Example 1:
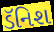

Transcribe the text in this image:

ડૅનિશ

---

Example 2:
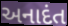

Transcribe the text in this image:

અનાદંત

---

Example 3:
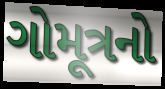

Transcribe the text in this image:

ગોમૂત્રનો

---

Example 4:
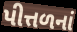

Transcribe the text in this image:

પીત્તળનાં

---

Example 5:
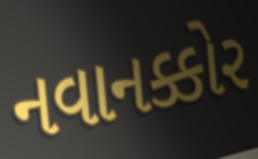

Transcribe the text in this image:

નવાનક્કોર